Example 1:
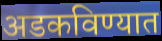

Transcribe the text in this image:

अडकविण्यात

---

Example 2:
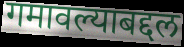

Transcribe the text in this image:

गमावल्याबद्दल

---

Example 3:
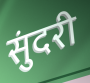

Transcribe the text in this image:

सुंदरी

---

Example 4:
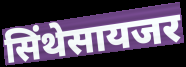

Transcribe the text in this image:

सिंथेसायजर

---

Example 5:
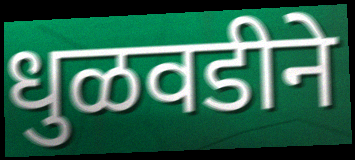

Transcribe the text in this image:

धुळवडीने